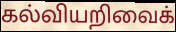
கல்வியறிவைக்